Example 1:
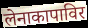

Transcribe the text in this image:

लेनाकापाविर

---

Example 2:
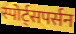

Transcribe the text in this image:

स्पोर्ट्सपर्सन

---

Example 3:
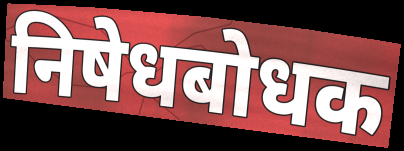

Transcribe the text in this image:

निषेधबोधक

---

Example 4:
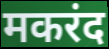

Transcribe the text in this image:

मकरंद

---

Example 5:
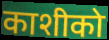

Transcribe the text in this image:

काशीको